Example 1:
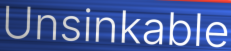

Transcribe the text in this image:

Unsinkable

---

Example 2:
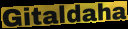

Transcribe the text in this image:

Gitaldaha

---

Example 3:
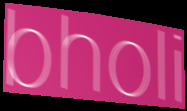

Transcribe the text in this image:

bholi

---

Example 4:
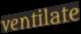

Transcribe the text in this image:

ventilate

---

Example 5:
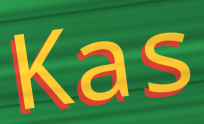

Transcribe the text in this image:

Kas